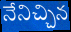
నేనిచ్చిన